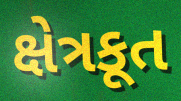
ક્ષેત્રકૂત